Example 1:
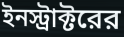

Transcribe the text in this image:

ইনস্ট্রাক্টরের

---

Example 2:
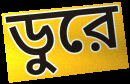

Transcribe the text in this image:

ডুরে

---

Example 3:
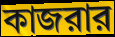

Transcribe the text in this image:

কাজরার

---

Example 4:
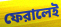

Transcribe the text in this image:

ফেরালেই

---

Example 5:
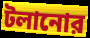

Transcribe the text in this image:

টলানোর